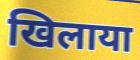
खिलाया